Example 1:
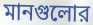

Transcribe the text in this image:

মানগুলোর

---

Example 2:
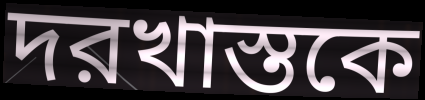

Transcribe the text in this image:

দরখাস্তকে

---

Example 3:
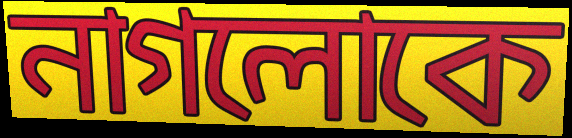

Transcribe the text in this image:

নাগলোকে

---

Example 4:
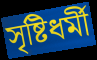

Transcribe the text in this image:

সৃষ্টিধর্মী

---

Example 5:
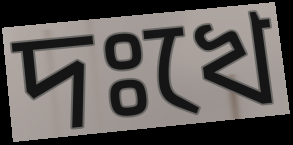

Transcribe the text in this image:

দঃখে